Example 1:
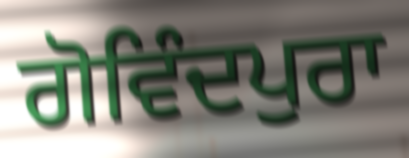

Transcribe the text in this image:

ਗੋਵਿੰਦਪੁਰਾ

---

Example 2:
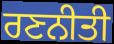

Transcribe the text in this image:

ਰਣਨੀਤੀ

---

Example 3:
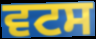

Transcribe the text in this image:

ਵਟਸ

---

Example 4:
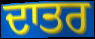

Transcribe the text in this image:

ਦਾਤਰ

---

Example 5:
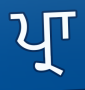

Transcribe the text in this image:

ਪ੍ਰਾ